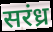
सरंध्र